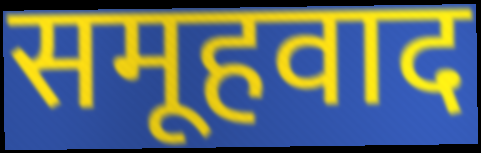
समूहवाद